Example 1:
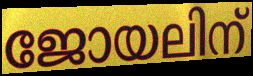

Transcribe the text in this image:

ജോയലിന്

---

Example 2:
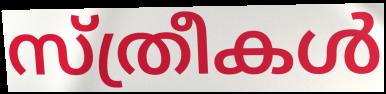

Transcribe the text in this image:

സ്ത്രീകൾ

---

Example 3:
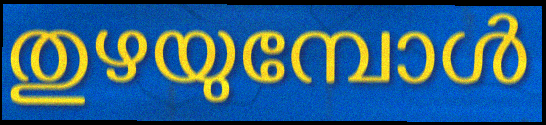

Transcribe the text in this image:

തുഴയുമ്പോൾ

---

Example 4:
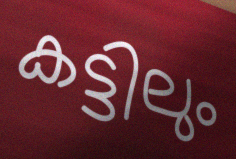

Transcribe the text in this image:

കട്ടിലും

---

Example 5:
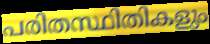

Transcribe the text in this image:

പരിതസ്ഥിതികളും